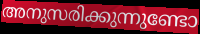
അനുസരിക്കുന്നുണ്ടോ